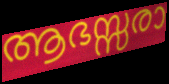
ആഭസ്സരാ